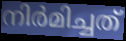
നിർമിച്ചത്